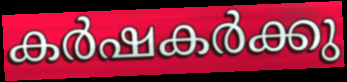
കർഷകർക്കു